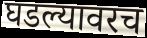
घडल्यावरच